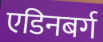
एडिनबर्ग